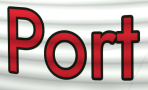
Port